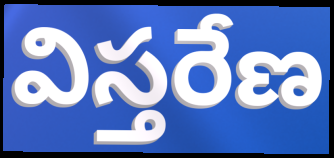
విస్తరేణ